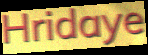
Hridaye